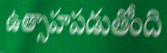
ఉత్సాహపడుతోంది